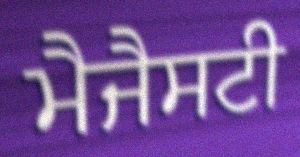
ਮੈਜੈਸਟੀ